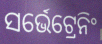
ସର୍ଭେଟ୍ରେନିଂ